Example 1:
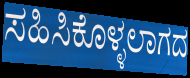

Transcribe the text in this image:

ಸಹಿಸಿಕೊಳ್ಳಲಾಗದ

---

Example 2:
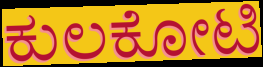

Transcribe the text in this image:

ಕುಲಕೋಟಿ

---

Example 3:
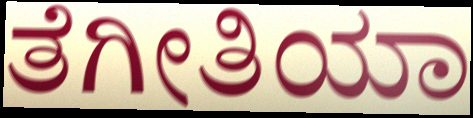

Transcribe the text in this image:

ತೆಗೀತಿಯಾ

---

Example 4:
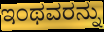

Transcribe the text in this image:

ಇಂಥವರನ್ನು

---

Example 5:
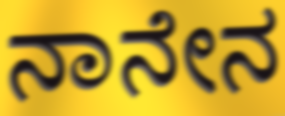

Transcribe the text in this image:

ನಾನೇನ